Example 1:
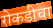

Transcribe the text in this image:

रोकडीचा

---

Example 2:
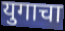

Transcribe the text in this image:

युगाचा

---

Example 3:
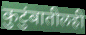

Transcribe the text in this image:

कुटुंबातीलही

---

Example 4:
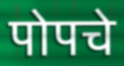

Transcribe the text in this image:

पोपचे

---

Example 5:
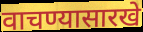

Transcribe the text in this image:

वाचण्यासारखे